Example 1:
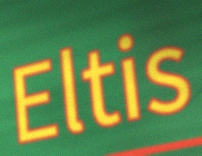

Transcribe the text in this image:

Eltis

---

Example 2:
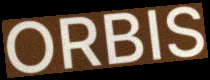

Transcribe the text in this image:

ORBIS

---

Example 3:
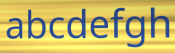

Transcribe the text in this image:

abcdefgh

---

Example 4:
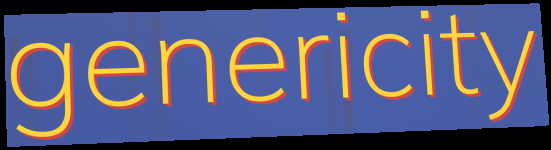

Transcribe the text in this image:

genericity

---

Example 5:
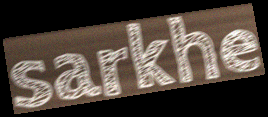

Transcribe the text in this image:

sarkhe